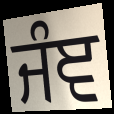
ਜੰਞ